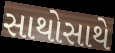
સાથોસાથે